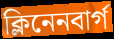
ক্লিনেনবার্গ